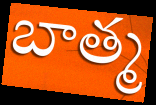
బాత్మ